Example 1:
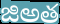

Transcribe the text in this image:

జిఅత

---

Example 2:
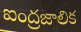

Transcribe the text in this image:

ఐంద్రజాలిక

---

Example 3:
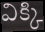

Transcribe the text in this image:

విక్కి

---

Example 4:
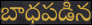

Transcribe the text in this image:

బాధపడిన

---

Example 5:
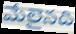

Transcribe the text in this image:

మేలైనది